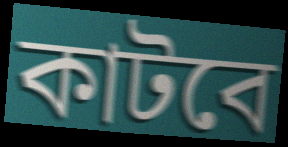
কাটবে